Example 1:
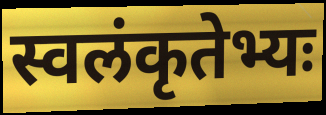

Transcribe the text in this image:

स्वलंकृतेभ्यः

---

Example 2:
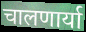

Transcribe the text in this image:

चालणार्या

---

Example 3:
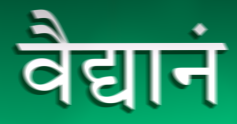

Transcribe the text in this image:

वैद्यानं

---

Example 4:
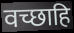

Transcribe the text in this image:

वच्छाहि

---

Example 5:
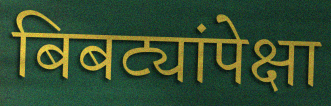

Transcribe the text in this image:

बिबट्यांपेक्षा